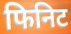
फिनिट